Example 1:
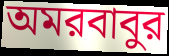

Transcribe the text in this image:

অমরবাবুর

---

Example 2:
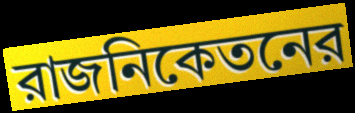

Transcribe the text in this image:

রাজনিকেতনের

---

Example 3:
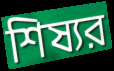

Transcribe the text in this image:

শিষ্যর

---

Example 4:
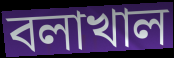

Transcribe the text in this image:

বলাখাল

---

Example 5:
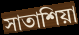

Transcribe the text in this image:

সাতাশিয়া